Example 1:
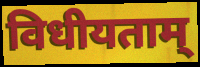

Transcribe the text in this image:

विधीयताम्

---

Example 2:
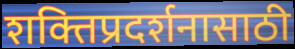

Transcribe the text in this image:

शक्तिप्रदर्शनासाठी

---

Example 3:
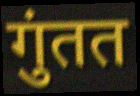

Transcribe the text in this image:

गुंतत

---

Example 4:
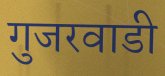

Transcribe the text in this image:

गुजरवाडी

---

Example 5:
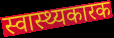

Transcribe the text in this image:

स्वास्थ्यकारक